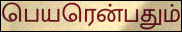
பெயரென்பதும்